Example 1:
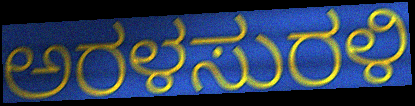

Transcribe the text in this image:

ಅರಳಸುರಳಿ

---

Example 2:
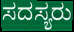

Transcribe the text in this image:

ಸದಸ್ಯರು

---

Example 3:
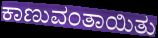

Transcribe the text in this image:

ಕಾಣುವಂತಾಯಿತು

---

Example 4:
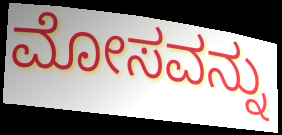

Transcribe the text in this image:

ಮೋಸವನ್ನು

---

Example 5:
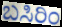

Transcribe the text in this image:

ಬಸಿರಿಂ